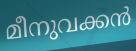
മീനുവക്കൻ